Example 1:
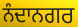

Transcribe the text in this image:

ਨੰਦਾਨਗਰ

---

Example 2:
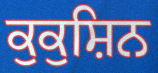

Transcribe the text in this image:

ਕੁਕੁਸ਼ਿਨ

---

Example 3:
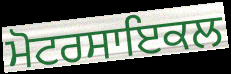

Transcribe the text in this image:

ਮੋਟਰਸਾਇਕਲ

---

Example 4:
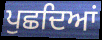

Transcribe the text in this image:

ਪੁਛਦਿਆਂ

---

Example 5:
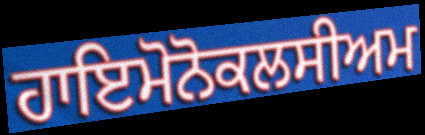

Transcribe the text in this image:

ਹਾਇਮੋਨੋਕਲਸੀਅਮ